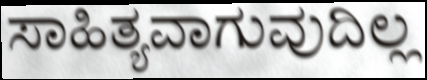
ಸಾಹಿತ್ಯವಾಗುವುದಿಲ್ಲ